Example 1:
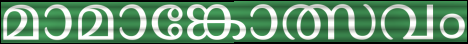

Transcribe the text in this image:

മാമാങ്കോത്സവം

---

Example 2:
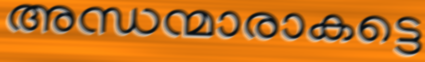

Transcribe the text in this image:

അന്ധന്മാരാകട്ടെ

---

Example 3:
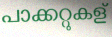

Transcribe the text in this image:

പാക്കറ്റുകള്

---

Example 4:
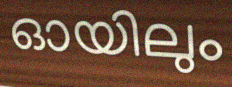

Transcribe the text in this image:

ഓയിലും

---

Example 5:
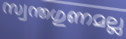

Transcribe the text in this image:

സ്വന്തഗുണമല്ല